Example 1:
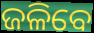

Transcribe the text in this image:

ଜଳିବେ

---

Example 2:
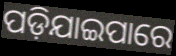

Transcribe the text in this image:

ପଡ଼ିଯାଇପାରେ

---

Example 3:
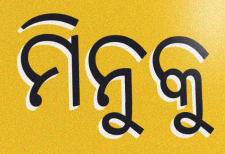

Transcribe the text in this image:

ମିନୁକୁ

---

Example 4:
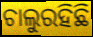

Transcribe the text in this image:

ଚାଲୁରହିଛି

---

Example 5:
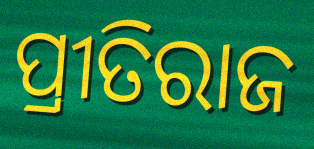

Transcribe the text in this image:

ପ୍ରୀତିରାଜ